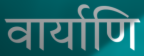
वार्याणि